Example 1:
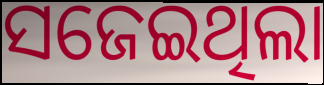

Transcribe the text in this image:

ସଜେଇଥିଲା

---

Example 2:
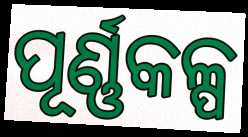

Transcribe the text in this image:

ପୂର୍ଣ୍ଣକଳ୍ପ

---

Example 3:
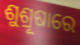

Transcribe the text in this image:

ଶୁଶ୍ରୂଷାରେ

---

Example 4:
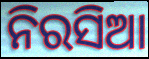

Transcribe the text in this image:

ନିରସିଆ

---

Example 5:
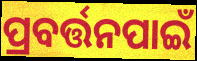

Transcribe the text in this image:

ପ୍ରବର୍ତ୍ତନପାଇଁ